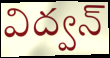
విద్వన్